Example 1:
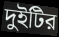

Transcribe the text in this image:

দুইটির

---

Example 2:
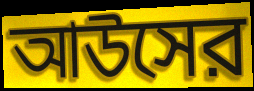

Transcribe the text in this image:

আউসের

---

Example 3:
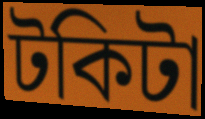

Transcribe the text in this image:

টকিটা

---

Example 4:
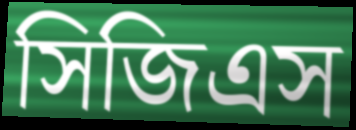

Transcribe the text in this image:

সিজিএস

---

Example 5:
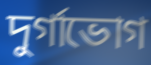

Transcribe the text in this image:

দুর্গাভোগ